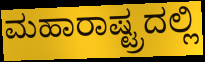
ಮಹಾರಾಷ್ಟ್ರದಲ್ಲಿ